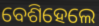
ବେଶିହେଲେ